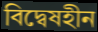
বিদ্বেষহীন